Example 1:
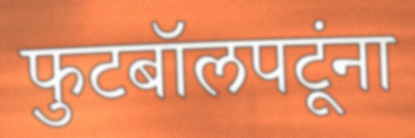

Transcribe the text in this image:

फुटबॉलपटूंना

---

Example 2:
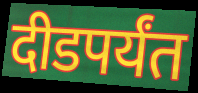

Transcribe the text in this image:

दीडपर्यंत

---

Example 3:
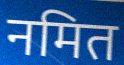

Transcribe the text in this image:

नमित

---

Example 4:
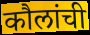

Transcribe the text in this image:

कौलांची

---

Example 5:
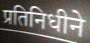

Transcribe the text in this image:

प्रतिनिधीने